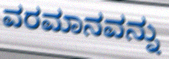
ವರಮಾನವನ್ನು